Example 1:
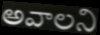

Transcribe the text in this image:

అవాలని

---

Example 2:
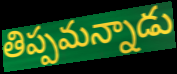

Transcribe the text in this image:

తిప్పమన్నాడు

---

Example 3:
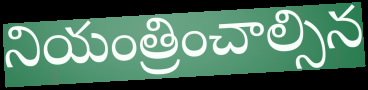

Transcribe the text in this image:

నియంత్రించాల్సిన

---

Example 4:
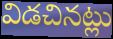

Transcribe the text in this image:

విడచినట్లు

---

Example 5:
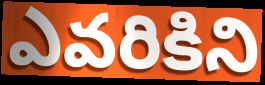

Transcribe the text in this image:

ఎవరికిని